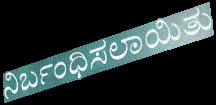
ನಿರ್ಬಂಧಿಸಲಾಯಿತು